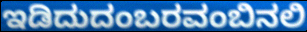
ಇಡಿದುದಂಬರವಂಬಿನಲಿ